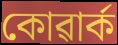
কোৱাৰ্ক